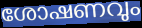
ശോഷണവും